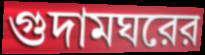
গুদামঘরের